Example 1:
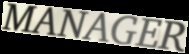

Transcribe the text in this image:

MANAGER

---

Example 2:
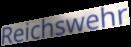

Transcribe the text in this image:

Reichswehr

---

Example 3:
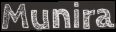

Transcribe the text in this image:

Munira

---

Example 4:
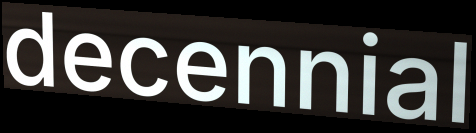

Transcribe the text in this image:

decennial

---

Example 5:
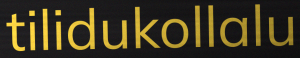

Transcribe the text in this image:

tilidukollalu